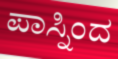
ಪಾಸ್ನಿಂದ